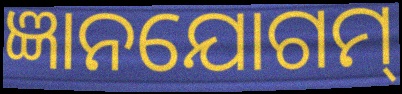
ଜ୍ଞାନଯୋଗମ୍